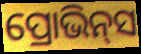
ପ୍ରୋଭିନ୍‌ସ